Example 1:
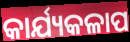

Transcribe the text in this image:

କାର୍ଯ୍ୟକଳାପ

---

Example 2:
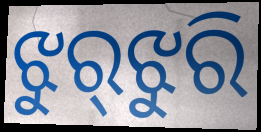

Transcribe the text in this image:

ଝୁର୍‌ଝୁରି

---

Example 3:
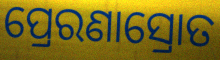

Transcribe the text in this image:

ପ୍ରେରଣାସ୍ରୋତ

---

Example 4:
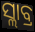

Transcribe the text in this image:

ସ୍ଲାବ୍ର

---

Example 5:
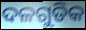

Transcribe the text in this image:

ଦଳଗୁଡିକ